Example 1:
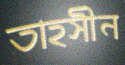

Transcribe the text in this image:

তাহসীন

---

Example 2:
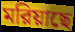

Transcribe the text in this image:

মরিয়াছে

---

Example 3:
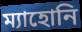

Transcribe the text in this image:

ম্যাহোনি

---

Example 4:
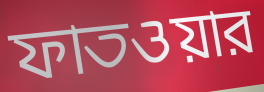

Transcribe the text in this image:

ফাতওয়ার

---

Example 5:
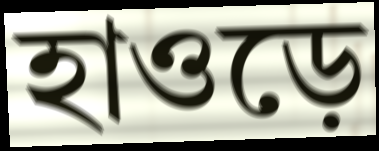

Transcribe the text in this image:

হাওড়ে